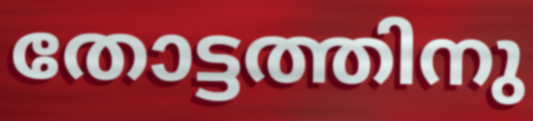
തോട്ടത്തിനു